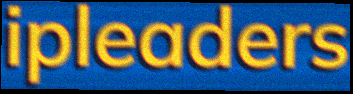
ipleaders